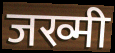
जख्मी